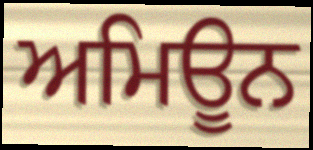
ਅਮਿਊਨ